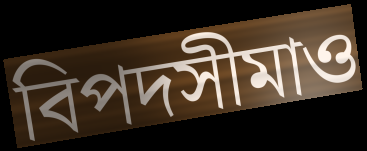
বিপদসীমাও